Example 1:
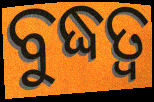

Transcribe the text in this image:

ବୁଦ୍ଧତ୍ୱ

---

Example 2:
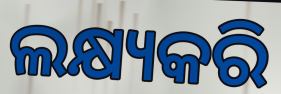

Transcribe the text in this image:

ଲକ୍ଷ୍ୟକରି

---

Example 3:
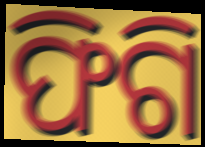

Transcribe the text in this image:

ଫିଗି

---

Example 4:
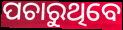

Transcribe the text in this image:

ପଚାରୁଥିବେ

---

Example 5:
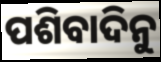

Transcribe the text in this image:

ପଶିବାଦିନୁ